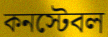
কনস্টেবল